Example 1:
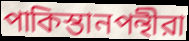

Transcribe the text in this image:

পাকিস্তানপন্থীরা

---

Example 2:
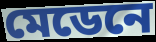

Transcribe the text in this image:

মেডেনে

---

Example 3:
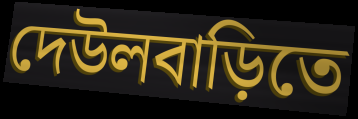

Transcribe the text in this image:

দেউলবাড়িতে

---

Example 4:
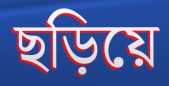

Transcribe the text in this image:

ছড়িয়ে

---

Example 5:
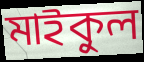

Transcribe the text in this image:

মাইকুল